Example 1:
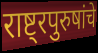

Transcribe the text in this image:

राष्ट्रपुरुषांचे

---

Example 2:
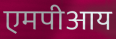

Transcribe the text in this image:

एमपीआय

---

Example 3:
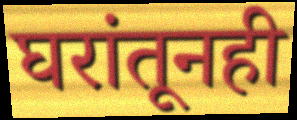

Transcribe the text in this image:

घरांतूनही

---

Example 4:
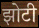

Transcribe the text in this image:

झोटी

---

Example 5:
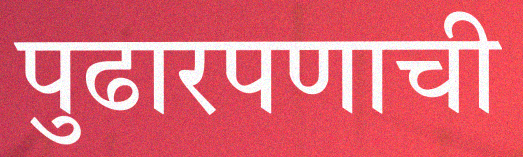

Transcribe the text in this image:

पुढारपणाची